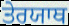
ਤੇਰਯਾਥ